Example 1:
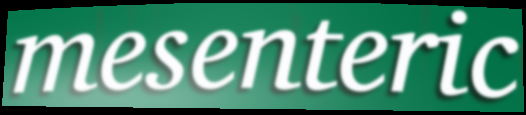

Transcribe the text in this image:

mesenteric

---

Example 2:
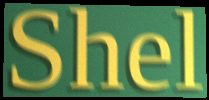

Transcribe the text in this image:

Shel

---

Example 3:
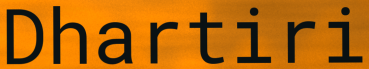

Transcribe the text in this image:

Dhartiri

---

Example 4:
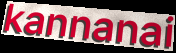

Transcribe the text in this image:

kannanai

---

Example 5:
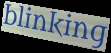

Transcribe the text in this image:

blinking